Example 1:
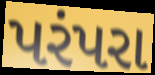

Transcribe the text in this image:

પરંપરા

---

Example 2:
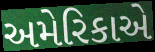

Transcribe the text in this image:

અમેરિકાએ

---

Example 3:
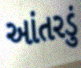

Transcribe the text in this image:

આંતરડું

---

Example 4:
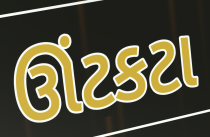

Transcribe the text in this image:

ઊંટકટા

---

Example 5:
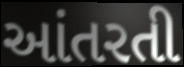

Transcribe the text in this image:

આંતરતી